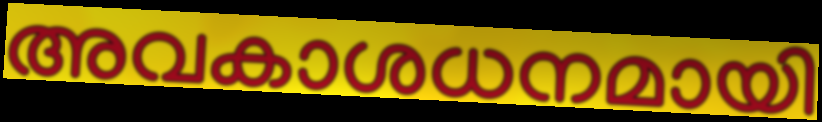
അവകാശധനമായി